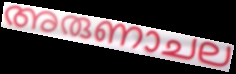
അരുണാചല